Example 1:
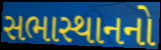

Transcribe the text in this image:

સભાસ્થાનનો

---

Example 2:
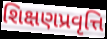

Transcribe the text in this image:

શિક્ષણપ્રવૃત્તિ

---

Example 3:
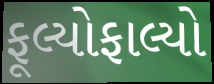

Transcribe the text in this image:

ફૂલ્યોફાલ્યો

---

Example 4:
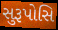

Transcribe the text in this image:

સુરૂપોસિ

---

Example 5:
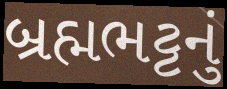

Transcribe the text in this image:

બ્રહ્મભટ્ટનું